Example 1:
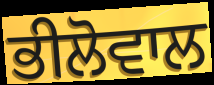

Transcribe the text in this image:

ਭੀਲੋਵਾਲ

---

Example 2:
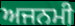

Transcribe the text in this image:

ਅਜਨਮੀ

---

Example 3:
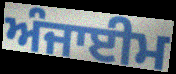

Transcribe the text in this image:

ਅੰਜਾਈਮ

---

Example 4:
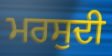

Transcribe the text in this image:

ਮਰਸੁਦੀ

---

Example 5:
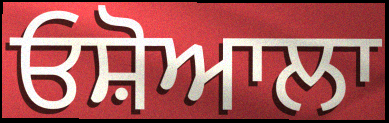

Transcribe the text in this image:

ਓਸ਼ੋਆਲਾ